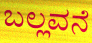
ಬಲ್ಲವನೆ